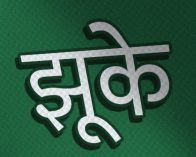
झूके